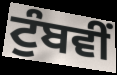
ਟੁੰਬਵੀਂ